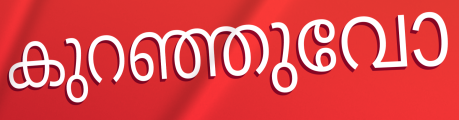
കുറഞ്ഞുവോ